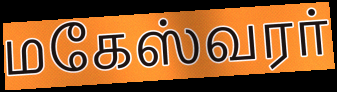
மகேஸ்வரர்